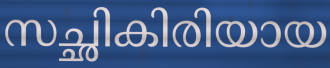
സച്ഛികിരിയായ